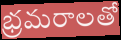
భ్రమరాలతో